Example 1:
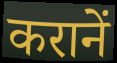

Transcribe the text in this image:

करानें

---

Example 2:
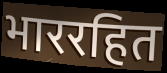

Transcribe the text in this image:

भाररहित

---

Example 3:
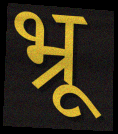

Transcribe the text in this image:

भ्रू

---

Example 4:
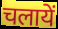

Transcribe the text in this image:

चलायें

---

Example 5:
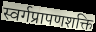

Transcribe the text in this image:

स्वर्गप्रापणशक्ति